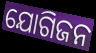
ଯୋଗିଜନ